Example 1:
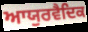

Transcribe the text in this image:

ਆਯੁਰਵੈਦਿਕ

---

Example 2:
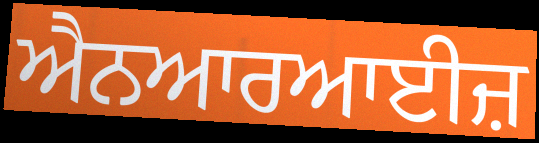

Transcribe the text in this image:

ਐਨਆਰਆਈਜ਼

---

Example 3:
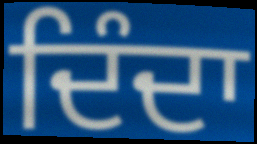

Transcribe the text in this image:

ਦਿੰਦਾ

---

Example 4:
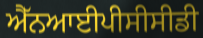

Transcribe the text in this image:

ਐੱਨਆਈਪੀਸੀਸੀਡੀ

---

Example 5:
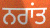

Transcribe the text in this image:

ਨਰਾਂਤ